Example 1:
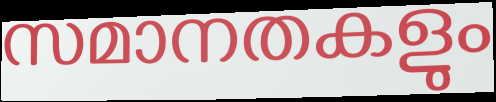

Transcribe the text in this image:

സമാനതകളും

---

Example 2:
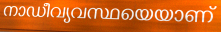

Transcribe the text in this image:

നാഡീവ്യവസ്ഥയെയാണ്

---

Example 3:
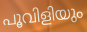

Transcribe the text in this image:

പൂവിളിയും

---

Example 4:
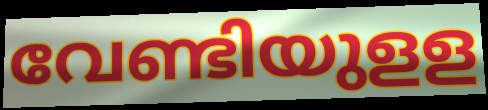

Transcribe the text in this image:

വേണ്ടിയുളള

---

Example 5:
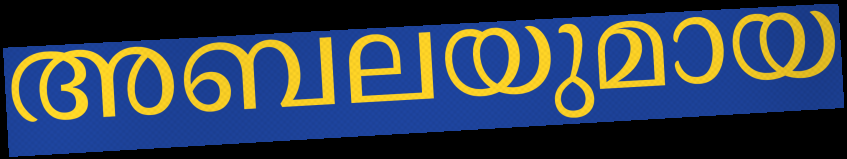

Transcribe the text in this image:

അബലയുമായ